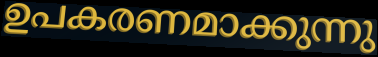
ഉപകരണമാക്കുന്നു